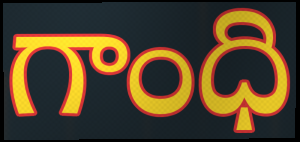
గాంధి